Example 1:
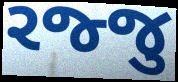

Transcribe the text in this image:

રજ્જુ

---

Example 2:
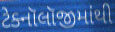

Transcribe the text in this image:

ટેક્નૉલૉજીમાંથી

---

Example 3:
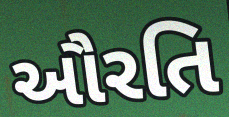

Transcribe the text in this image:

ઔરતિ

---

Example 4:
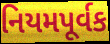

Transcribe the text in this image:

નિયમપૂર્વક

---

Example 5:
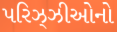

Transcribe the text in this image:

પરિઝ્ઝીઓનો